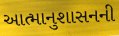
આત્માનુશાસનની